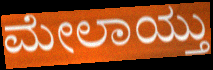
ಮೇಲಾಯ್ತು